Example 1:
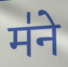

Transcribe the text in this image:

म॑ने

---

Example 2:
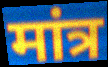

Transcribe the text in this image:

मांत्र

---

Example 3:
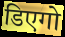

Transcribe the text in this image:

डिएगो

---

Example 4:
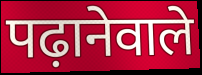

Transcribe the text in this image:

पढ़ानेवाले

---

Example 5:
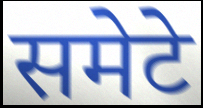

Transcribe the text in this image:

समेटे